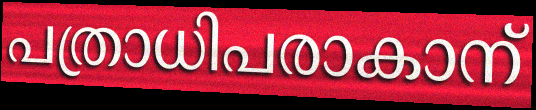
പത്രാധിപരാകാന്